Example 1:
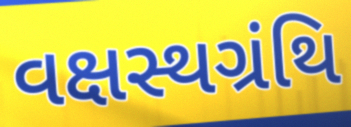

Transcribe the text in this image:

વક્ષસ્થગ્રંથિ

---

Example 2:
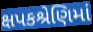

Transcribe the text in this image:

ક્ષપકશ્રેણિમાં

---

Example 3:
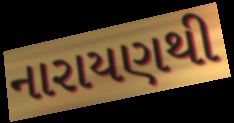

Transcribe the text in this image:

નારાયણથી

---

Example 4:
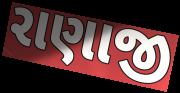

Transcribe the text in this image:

રાણાજી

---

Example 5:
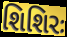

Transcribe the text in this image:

શિશિરઃ